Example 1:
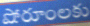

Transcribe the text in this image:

షోరూంలకు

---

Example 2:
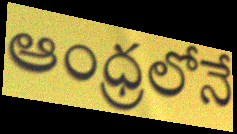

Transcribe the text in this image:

ఆంధ్రలోనే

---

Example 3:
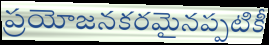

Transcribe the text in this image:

ప్రయోజనకరమైనప్పటికీ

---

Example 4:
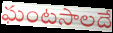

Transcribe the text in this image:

ఘంటసాలదే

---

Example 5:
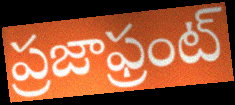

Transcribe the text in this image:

ప్రజాఫ్రంట్